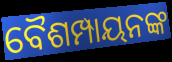
ବୈଶମ୍ପାୟନଙ୍କ